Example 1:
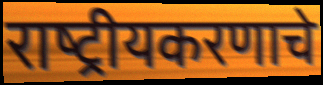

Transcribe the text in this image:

राष्ट्रीयकरणाचे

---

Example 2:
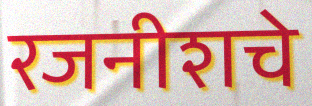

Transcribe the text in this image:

रजनीशचे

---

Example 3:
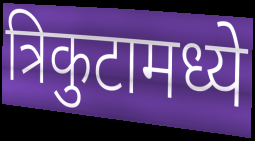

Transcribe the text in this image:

त्रिकुटामध्ये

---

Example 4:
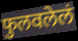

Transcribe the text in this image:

फुलवलेलं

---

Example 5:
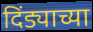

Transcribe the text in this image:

दिंड्याच्या